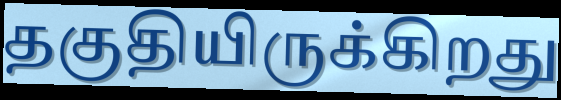
தகுதியிருக்கிறது